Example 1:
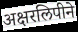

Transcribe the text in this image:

अक्षरलिपीने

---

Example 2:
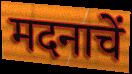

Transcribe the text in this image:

मदनाचें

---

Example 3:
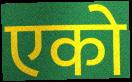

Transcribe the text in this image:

एको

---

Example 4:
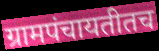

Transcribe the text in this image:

ग्रामपंचायतीतच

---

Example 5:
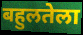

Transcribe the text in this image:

बहुलतेला